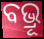
ବଭ୍ରୂ